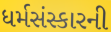
ધર્મસંસ્કારની